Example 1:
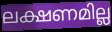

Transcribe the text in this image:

ലക്ഷണമില്ല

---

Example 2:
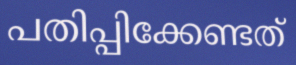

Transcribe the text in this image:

പതിപ്പിക്കേണ്ടത്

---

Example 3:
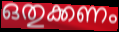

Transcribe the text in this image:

ഒതുക്കണം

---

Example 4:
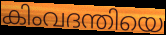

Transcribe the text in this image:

കിംവദന്തിയെ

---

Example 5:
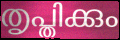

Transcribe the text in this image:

തൃപ്തിക്കും